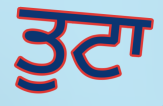
ਤੁਟਾ